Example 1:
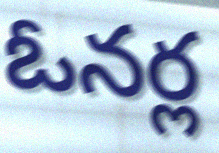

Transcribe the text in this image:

ఓనర్ల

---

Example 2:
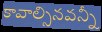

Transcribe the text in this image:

కావాల్సినవన్నీ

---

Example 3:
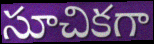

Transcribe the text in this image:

సూచికగా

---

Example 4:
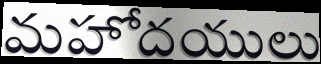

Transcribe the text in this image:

మహోదయులు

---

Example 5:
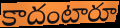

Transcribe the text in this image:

కాదంటారూ